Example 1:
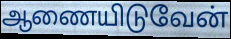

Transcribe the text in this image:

ஆணையிடுவேன்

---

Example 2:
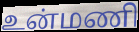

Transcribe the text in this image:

உன்மணி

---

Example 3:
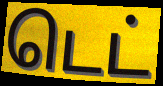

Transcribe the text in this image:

டெட்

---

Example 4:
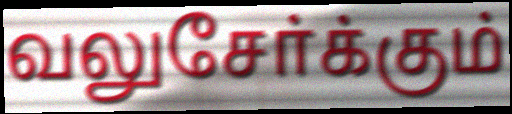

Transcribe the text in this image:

வலுசேர்க்கும்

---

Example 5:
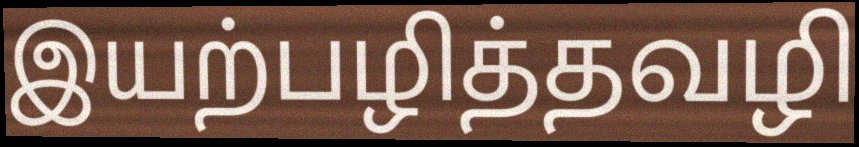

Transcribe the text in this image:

இயற்பழித்தவழி